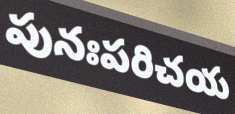
పునఃపరిచయ